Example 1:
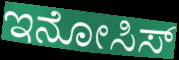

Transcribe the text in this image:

ಇನೋಸಿಸ್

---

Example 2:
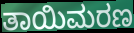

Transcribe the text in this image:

ತಾಯಿಮರಣ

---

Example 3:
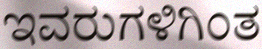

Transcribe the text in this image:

ಇವರುಗಳಿಗಿಂತ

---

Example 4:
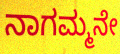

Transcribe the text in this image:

ನಾಗಮ್ಮನೇ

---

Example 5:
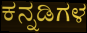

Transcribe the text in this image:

ಕನ್ನಡಿಗಳ